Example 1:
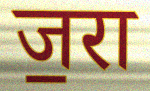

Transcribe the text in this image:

ज॒रा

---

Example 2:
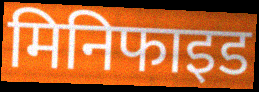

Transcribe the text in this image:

मिनिफाइड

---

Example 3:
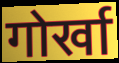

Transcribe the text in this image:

गोर्खा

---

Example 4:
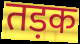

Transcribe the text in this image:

तड़क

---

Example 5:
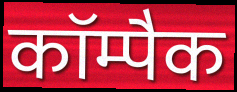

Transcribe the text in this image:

कॉम्पैक